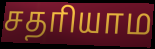
சதரியாம